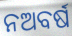
ନଅବର୍ଷ